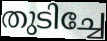
തുടിച്ചേ